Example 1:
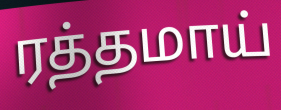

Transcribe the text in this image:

ரத்தமாய்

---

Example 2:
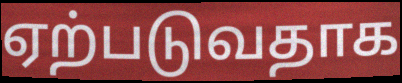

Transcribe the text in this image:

ஏற்படுவதாக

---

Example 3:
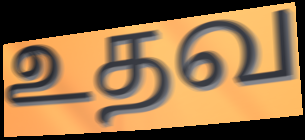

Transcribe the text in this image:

உதவ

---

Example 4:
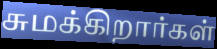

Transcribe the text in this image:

சுமக்கிறார்கள்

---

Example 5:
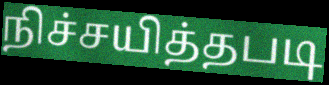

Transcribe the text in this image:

நிச்சயித்தபடி